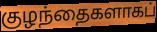
குழந்தைகளாகப்